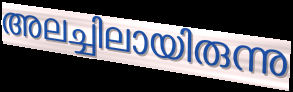
അലച്ചിലായിരുന്നു